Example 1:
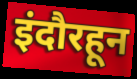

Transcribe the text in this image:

इंदौरहून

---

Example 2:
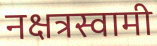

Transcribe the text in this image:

नक्षत्रस्वामी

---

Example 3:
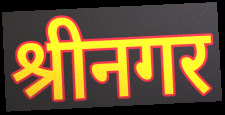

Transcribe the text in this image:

श्रीनगर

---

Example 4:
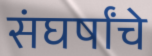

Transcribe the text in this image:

संघर्षांचे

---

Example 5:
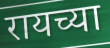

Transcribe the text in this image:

रायच्या